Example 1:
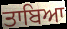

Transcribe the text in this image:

ਤਾਬਿਆ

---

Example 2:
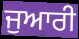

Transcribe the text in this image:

ਜੁਆਰੀ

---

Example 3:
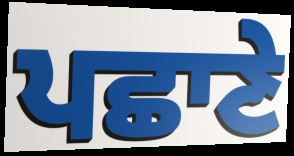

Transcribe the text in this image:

ਪਛਾਣੇ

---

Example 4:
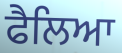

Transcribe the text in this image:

ਫੈਲਿਆ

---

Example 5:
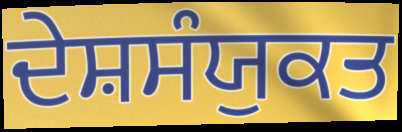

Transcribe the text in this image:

ਦੇਸ਼ਸੰਯੁਕਤ